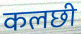
कलछी